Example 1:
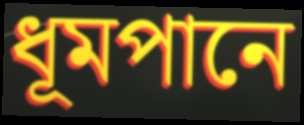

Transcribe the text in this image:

ধূমপানে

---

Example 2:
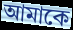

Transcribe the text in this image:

আমাকে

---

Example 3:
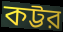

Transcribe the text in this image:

কট্টর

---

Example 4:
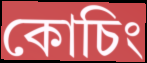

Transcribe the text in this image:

কোচিং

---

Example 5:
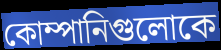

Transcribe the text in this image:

কোম্পানিগুলোকে